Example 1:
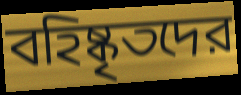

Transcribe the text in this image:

বহিষ্কৃতদের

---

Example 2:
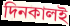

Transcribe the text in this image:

দিনকালই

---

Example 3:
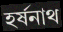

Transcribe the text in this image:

হর্ষনাথ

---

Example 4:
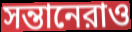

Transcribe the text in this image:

সন্তানেরাও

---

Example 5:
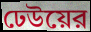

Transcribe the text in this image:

ঢেউয়ের